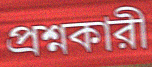
প্রশ্নকারী